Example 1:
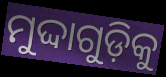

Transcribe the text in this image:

ମୁଦ୍ଦାଗୁଡ଼ିକୁ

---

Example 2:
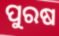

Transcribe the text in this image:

ପୁରଷ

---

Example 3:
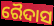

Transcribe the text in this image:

ରୈଦାସ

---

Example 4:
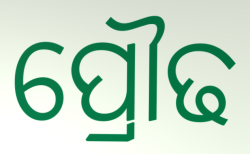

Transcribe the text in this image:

ପ୍ରୌଢ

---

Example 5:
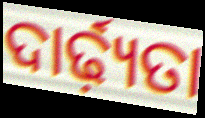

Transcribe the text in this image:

ଦାର୍ଢ଼୍ୟତା